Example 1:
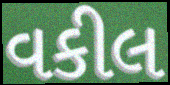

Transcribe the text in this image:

વકીલ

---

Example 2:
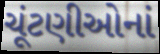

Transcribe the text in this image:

ચૂંટણીઓનાં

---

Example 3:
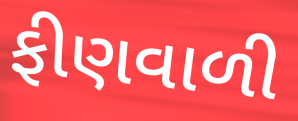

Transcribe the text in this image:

ફીણવાળી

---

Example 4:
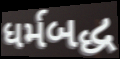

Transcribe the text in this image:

ધર્મબદ્ધ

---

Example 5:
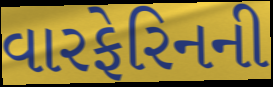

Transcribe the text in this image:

વારફેરિનની